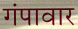
गंपावार